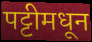
पट्टीमधून